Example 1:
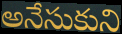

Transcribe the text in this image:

అనేసుకుని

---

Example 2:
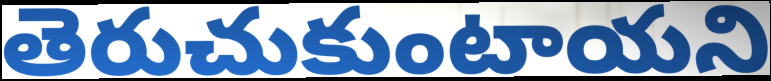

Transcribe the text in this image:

తెరుచుకుంటాయని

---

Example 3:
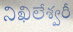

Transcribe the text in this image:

నిఖిలేశ్వరీ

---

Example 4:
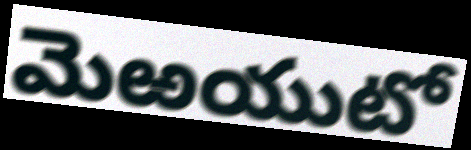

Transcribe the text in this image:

మెఱయుటో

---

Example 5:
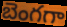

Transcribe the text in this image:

బెంగగా